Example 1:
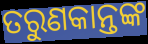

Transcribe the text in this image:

ତରୁଣକାନ୍ତଙ୍କ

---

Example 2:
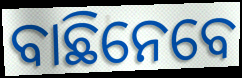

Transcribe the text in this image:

ବାଛିନେବେ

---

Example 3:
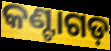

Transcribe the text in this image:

କଣ୍ଟାଗଡ଼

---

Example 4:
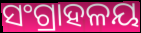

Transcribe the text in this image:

ସଂଗ୍ରାହଳୟ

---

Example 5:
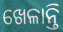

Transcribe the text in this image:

ଖେଳାନ୍ତି